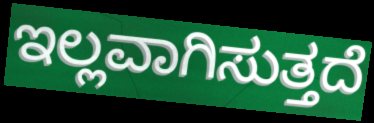
ಇಲ್ಲವಾಗಿಸುತ್ತದೆ